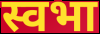
स्वभा